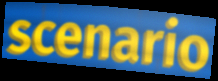
scenario